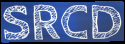
SRCD